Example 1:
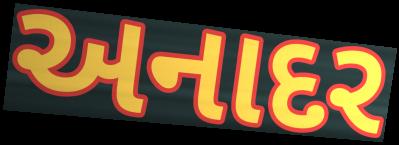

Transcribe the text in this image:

અનાદર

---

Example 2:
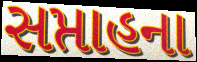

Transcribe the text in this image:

સપ્તાહના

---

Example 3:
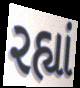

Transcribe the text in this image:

રહ્યાં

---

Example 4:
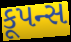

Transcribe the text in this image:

કૂપન્સ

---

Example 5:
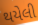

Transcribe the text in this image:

થયેલી